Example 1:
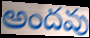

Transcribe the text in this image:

అందవు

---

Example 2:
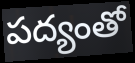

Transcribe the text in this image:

పద్యంతో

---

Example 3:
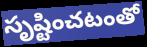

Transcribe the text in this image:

సృష్టించటంతో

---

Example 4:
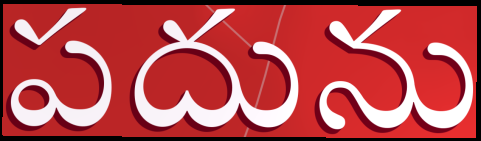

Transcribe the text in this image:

పదును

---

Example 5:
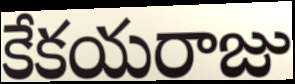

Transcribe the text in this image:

కేకయరాజు